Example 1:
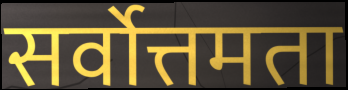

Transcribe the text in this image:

सर्वोत्तमता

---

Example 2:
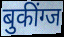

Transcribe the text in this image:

बुकींग्ज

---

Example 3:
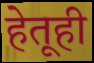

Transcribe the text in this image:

हेतूही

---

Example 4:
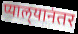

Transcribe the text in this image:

प्याल्यानंतर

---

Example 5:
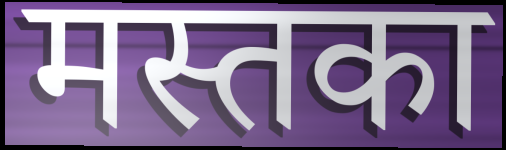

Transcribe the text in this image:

मस्तका